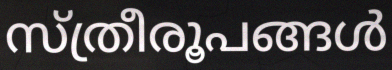
സ്ത്രീരൂപങ്ങൾ